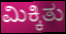
ಮಿಕ್ಕಿತು